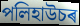
পলিহাউচৰ